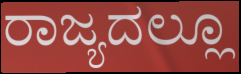
ರಾಜ್ಯದಲ್ಲೂ